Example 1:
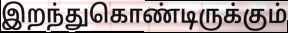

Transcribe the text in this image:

இறந்துகொண்டிருக்கும்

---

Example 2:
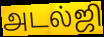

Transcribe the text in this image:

அடல்ஜி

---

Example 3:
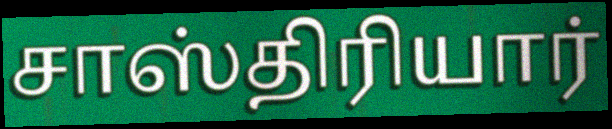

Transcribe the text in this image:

சாஸ்திரியார்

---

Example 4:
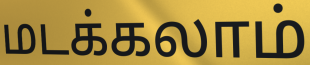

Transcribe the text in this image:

மடக்கலாம்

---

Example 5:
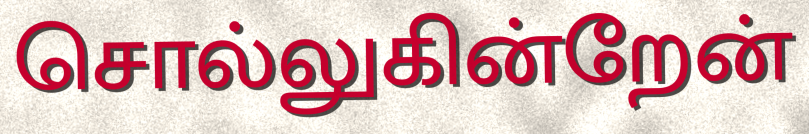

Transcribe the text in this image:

சொல்லுகின்றேன்